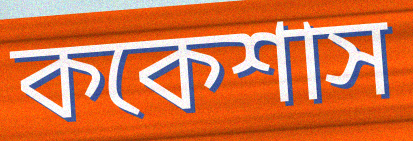
ককেশাস